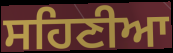
ਸਹਿਣੀਆ